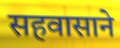
सहवासाने